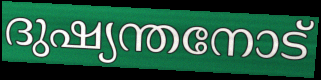
ദുഷ്യന്തനോട്